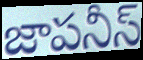
జాపనీస్